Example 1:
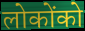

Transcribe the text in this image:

लोकोंको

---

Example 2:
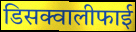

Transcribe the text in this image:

डिसक्वालीफाई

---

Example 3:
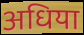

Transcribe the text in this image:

अधिया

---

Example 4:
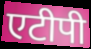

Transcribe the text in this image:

एटीपी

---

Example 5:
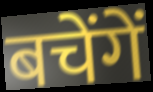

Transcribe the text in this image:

बचेंगें